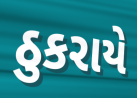
ઠુકરાયે